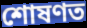
শোষণত